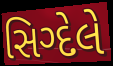
સિગ્દેલે